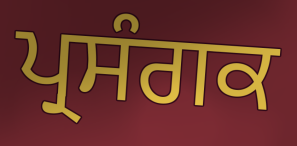
ਪ੍ਰਸੰਗਕ